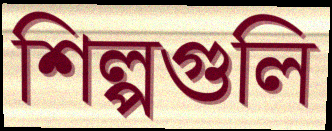
শিল্পগুলি